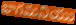
భాగమనియు